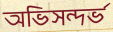
অভিসন্দর্ভ